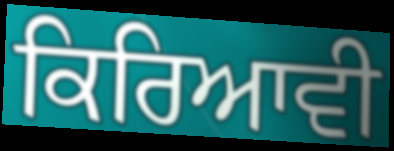
ਕਿਰਿਆਵੀ